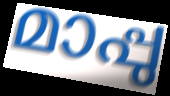
മാപ്പു